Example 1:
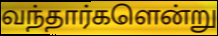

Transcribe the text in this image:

வந்தார்களென்று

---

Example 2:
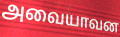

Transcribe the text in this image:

அவையாவன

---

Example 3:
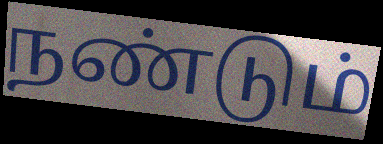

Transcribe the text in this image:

நண்டும்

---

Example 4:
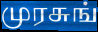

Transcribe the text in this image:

முரசுங்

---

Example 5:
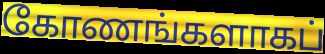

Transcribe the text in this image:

கோணங்களாகப்